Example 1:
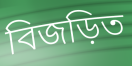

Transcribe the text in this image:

বিজড়িত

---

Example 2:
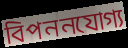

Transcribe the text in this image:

বিপননযোগ্য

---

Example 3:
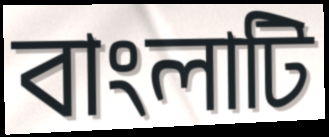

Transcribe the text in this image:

বাংলাটি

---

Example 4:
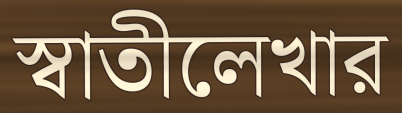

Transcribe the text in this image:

স্বাতীলেখার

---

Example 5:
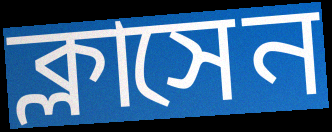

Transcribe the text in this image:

ক্লাসেন